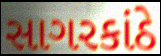
સાગરકાંઠે